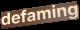
defaming